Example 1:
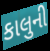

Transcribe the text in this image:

કાલુની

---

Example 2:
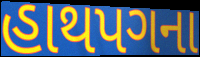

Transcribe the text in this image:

હાથપગના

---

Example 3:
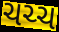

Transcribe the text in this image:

ચચ્ચ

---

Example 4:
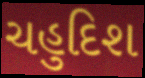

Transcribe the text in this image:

ચહુદિશ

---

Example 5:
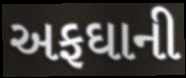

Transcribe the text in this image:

અફઘાની